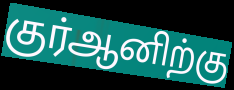
குர்ஆனிற்கு